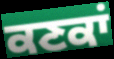
ਕਣਕਾਂ